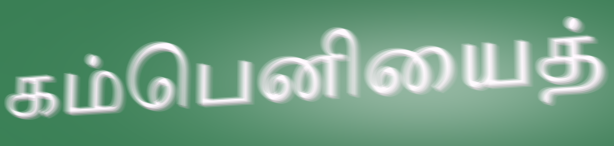
கம்பெனியைத்